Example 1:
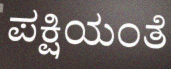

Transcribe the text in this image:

ಪಕ್ಷಿಯಂತೆ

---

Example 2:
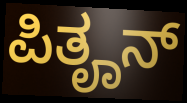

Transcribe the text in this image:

ಪಿತೄನ್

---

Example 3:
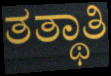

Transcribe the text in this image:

ತತ್ಥಾತಿ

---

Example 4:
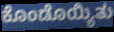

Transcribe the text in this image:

ಕೊಂಡೊಯ್ಯಿತು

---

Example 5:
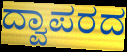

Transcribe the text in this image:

ದ್ವಾಪರದ